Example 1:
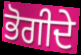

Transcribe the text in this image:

ਭੋਗੀਦੇ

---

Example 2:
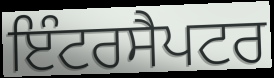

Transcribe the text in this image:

ਇੰਟਰਸੈਪਟਰ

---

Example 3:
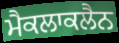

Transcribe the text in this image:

ਮੈਕਲਾਕਲੈਨ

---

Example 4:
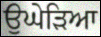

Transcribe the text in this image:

ਉਘੇੜਿਆ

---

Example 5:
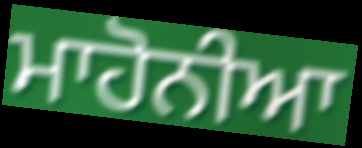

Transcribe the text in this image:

ਮਾਹੋਨੀਆ